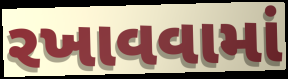
રખાવવામાં